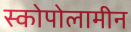
स्कोपोलामीन